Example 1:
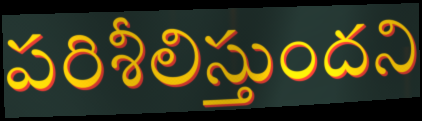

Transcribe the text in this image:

పరిశీలిస్తుందని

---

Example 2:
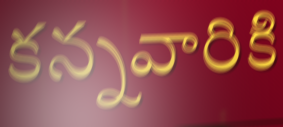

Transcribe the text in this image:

కన్నవారికి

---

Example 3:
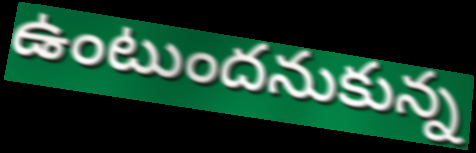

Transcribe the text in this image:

ఉంటుందనుకున్న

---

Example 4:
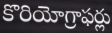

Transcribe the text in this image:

కొరియోగ్రాఫర్లు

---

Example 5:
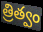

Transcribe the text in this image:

త్రిత్వం